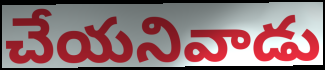
చేయనివాడు